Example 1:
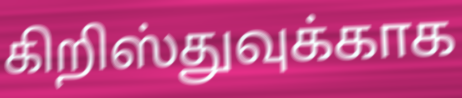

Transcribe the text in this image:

கிறிஸ்துவுக்காக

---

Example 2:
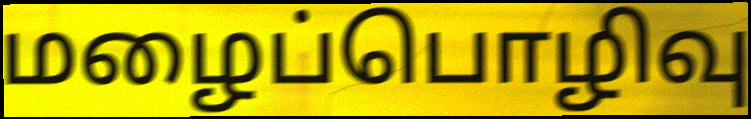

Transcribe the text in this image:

மழைப்பொழிவு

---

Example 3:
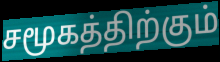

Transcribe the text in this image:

சமூகத்திற்கும்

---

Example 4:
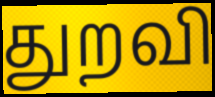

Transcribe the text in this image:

துறவி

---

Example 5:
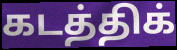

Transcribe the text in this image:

கடத்திக்